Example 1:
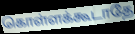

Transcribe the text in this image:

கொள்ளக்கூடாதே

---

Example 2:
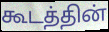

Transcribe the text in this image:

கூடத்தின்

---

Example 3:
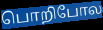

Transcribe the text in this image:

பொறிபோல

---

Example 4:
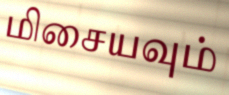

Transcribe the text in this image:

மிசையவும்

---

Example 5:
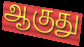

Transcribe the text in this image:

ஆகுது